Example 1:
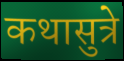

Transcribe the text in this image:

कथासुत्रे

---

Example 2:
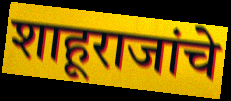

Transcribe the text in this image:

शाहूराजांचे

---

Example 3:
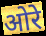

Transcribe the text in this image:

ओरे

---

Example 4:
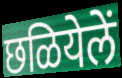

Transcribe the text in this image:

छळियेलें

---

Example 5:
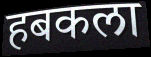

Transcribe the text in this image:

हबकला